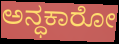
ಅನ್ಧಕಾರೋ